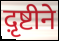
द़ृष्टीने